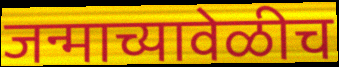
जन्माच्यावेळीच